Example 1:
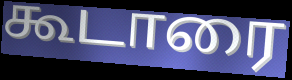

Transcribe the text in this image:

கூடாரை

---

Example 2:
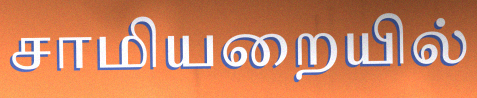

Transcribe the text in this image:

சாமியறையில்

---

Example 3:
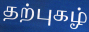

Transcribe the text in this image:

தற்புகழ்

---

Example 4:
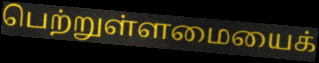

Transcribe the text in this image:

பெற்றுள்ளமையைக்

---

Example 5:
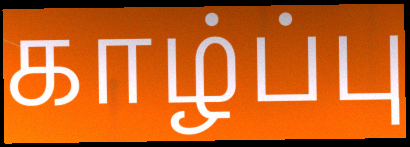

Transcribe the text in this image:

காழ்ப்பு